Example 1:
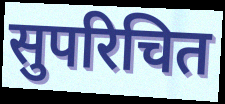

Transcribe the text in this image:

सुपरिचित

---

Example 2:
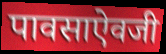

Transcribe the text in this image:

पावसाऐवजी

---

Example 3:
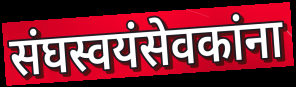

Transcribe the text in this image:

संघस्वयंसेवकांना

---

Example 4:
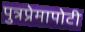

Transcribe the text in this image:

पुत्रप्रेमापोटी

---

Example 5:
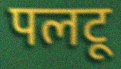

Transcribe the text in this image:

पलटू